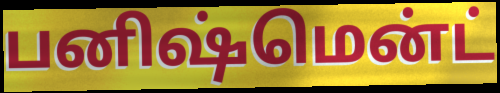
பனிஷ்மென்ட்